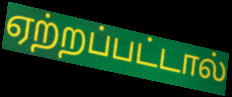
ஏற்றப்பட்டால்